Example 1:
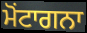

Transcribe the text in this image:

ਮੋਂਟਾਗਨਾ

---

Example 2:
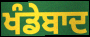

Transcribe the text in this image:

ਖੰਡੇਬਾਦ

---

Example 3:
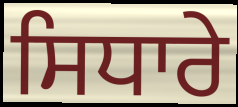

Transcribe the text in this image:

ਸਿਧਾਰੇ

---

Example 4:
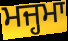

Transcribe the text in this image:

ਮਜ੍ਹਮਾ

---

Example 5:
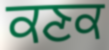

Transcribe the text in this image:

ਕਣਕ